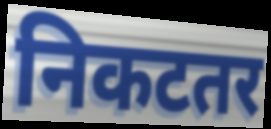
निकटतर